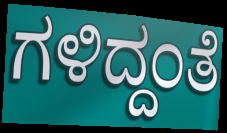
ಗಳಿದ್ದಂತೆ